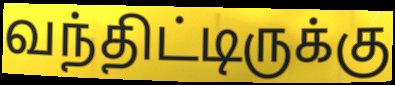
வந்திட்டிருக்கு